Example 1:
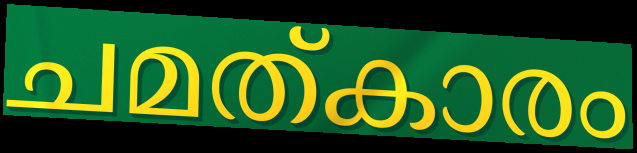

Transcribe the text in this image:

ചമത്കാരം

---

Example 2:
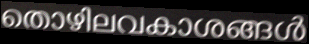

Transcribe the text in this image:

തൊഴിലവകാശങ്ങൾ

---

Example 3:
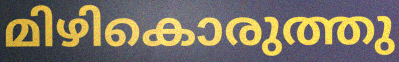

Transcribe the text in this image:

മിഴികൊരുത്തു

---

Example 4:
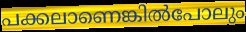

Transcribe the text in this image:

പക്കലാണെങ്കിൽപോലും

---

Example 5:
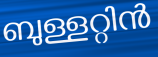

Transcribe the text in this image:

ബുള്ളറ്റിൻ